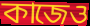
কাজেও